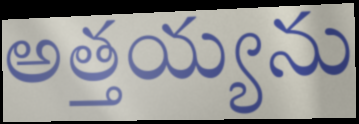
అత్తయ్యను